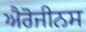
ਐਰੋਜੀਨਸ